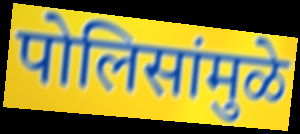
पोलिसांमुळे